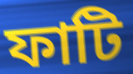
ফাটি